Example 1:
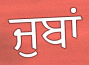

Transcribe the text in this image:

ਜੁਬਾਂ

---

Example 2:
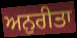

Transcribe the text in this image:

ਅਨੁਰੀਤਾ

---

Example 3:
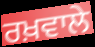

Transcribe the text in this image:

ਰਖ਼ਵਾਲੇ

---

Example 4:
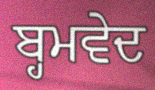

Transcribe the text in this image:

ਬ੍ਹਮਵੇਦ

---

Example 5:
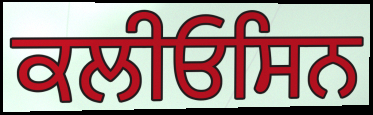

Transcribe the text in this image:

ਕਲੀਓਸਿਨ